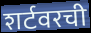
शर्टवरची